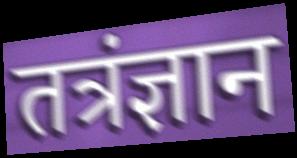
तत्रंज्ञान